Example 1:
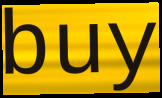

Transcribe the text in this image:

buy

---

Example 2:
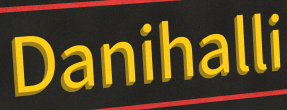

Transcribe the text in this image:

Danihalli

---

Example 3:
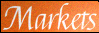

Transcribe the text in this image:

Markets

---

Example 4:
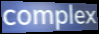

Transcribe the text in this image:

complex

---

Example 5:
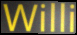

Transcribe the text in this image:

Willi